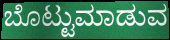
ಬೊಟ್ಟುಮಾಡುವ